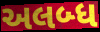
અલબ્ધ